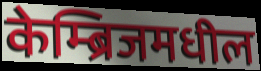
केम्ब्रिजमधील